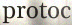
protoc